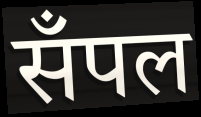
सँपल